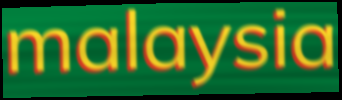
malaysia